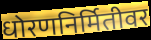
धोरणनिर्मितीवर